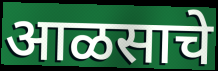
आळसाचे